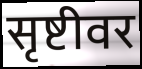
सृष्टीवर